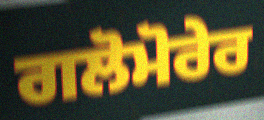
ਗਲੋਮੋਰੇਰ